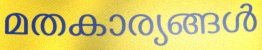
മതകാര്യങ്ങൾ